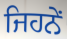
ਜਿਹਨੇਂ